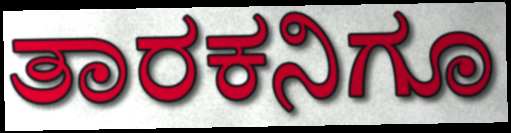
ತಾರಕನಿಗೂ